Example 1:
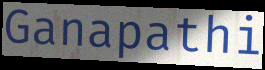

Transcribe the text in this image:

Ganapathi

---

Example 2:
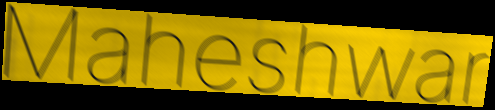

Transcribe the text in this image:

Maheshwar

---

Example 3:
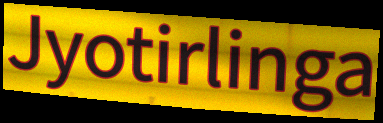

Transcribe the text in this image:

Jyotirlinga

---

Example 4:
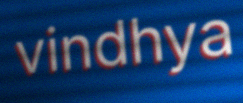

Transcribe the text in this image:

vindhya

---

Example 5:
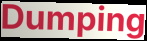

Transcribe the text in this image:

Dumping